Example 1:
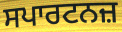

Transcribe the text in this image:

ਸਪਾਰਟਨਜ਼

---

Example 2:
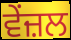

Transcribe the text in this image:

ਵੇਂਜ਼ਲ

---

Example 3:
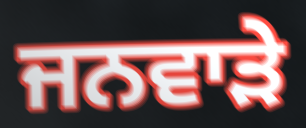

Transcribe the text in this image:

ਜਨਵਾੜੇ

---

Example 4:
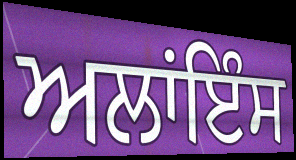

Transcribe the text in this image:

ਅਲਾਂਇੰਸ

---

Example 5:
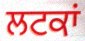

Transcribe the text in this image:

ਲਟਕਾਂ